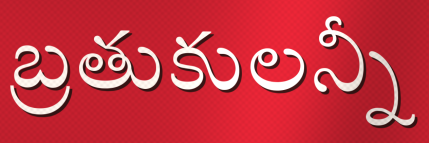
బ్రతుకులన్నీ